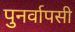
पुनर्वापसी